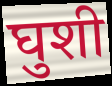
घुशी